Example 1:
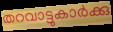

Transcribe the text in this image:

തറവാട്ടുകാർക്കു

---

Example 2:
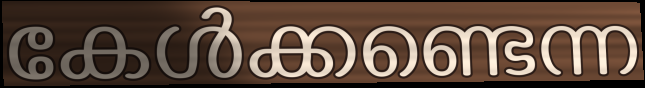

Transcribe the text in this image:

കേൾക്കണ്ടെന്ന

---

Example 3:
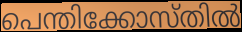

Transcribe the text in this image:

പെന്തിക്കോസ്തിൽ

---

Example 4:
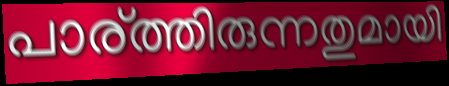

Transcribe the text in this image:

പാര്ത്തിരുന്നതുമായി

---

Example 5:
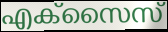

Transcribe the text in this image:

എക്‌സൈസ്